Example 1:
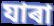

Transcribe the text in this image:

যাৰা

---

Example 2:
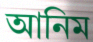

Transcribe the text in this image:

আনিম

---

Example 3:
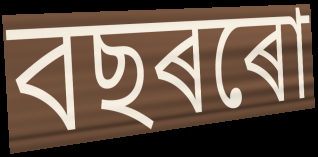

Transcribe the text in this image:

বছৰৰো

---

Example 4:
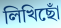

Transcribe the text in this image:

লিখিছোঁ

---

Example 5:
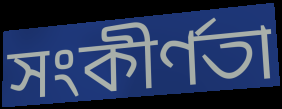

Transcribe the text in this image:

সংকীৰ্ণতা